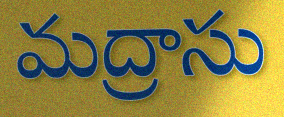
మద్రాసు